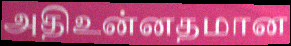
அதிஉன்னதமான